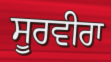
ਸੂਰਵੀਰਾ